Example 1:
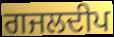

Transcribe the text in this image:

ਗਜਲਦੀਪ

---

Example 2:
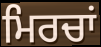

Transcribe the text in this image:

ਮਿਰਚਾਂ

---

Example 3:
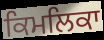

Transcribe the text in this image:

ਕਿਮਲਿਕਾ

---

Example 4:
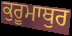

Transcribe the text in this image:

ਕੁਰੂਮਾਥੁਰ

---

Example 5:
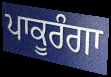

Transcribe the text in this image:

ਪਾਕੂਰੰਗਾ